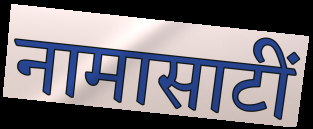
नामासाटीं